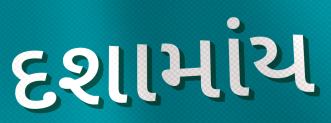
દશામાંય